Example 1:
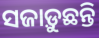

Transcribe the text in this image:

ସଜାଡ଼ୁଛନ୍ତି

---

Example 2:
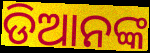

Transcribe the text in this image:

ଡିଆନଙ୍କ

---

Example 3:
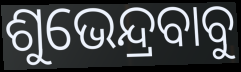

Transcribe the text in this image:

ଶୁଭେନ୍ଦ୍ରବାବୁ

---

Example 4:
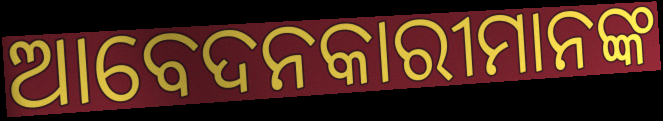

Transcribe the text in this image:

ଆବେଦନକାରୀମାନଙ୍କ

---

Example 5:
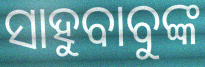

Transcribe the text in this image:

ସାହୁବାବୁଙ୍କ